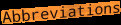
Abbreviations